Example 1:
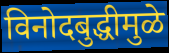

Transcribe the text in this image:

विनोदबुद्धीमुळे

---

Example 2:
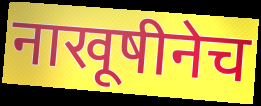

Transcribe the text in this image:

नाखूषीनेच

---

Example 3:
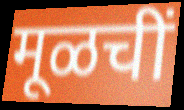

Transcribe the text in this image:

मूळचीं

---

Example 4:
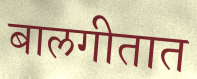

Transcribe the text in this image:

बालगीतात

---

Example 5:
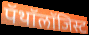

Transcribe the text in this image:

पॅथॉलॉजिस्ट